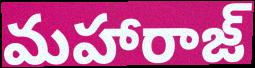
మహారాజ్